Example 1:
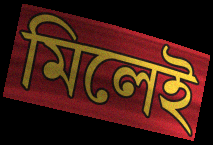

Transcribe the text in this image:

মিলেই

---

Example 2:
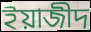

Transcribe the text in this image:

ইয়াজীদ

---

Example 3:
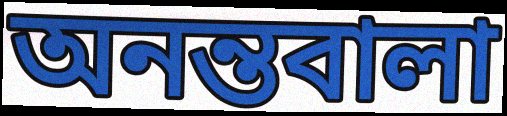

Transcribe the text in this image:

অনন্তবালা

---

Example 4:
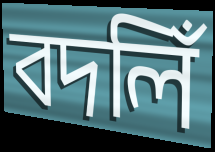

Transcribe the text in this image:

বদলিঁ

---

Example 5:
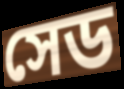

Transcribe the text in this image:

সেড